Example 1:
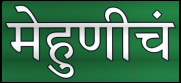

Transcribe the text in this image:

मेहुणीचं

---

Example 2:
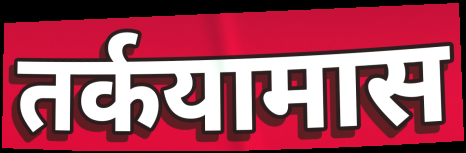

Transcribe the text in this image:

तर्कयामास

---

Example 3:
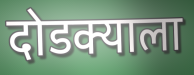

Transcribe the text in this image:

दोडक्याला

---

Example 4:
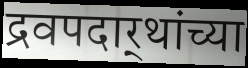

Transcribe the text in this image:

द्रवपदार्थांच्या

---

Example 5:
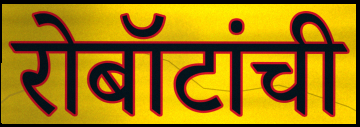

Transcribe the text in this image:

रोबॉटांची